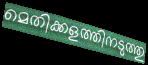
മെതിക്കളത്തിനടുത്തു